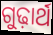
ଗୁଢ଼ାର୍ଥ